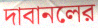
দাবানলের